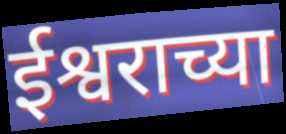
ईश्वराच्या